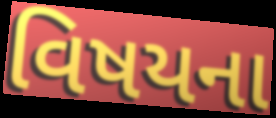
વિષયના